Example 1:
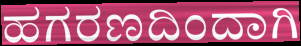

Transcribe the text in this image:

ಹಗರಣದಿಂದಾಗಿ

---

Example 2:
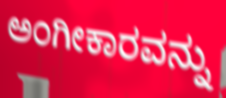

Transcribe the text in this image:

ಅಂಗೀಕಾರವನ್ನು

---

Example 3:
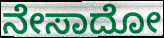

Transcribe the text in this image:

ನೇಸಾದೋ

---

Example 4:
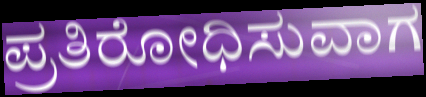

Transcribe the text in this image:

ಪ್ರತಿರೋಧಿಸುವಾಗ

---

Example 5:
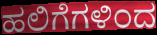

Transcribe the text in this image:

ಹಲಿಗೆಗಳಿಂದ